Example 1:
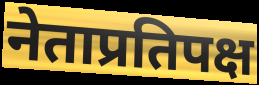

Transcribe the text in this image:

नेताप्रतिपक्ष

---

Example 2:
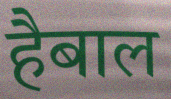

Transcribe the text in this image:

हैबाल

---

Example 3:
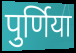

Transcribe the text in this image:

पुर्णिया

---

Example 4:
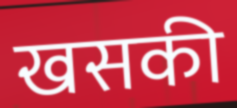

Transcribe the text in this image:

खसकी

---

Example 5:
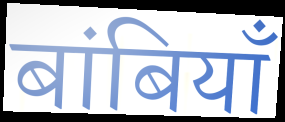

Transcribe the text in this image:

बांबियाँ